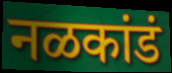
नळकांडं